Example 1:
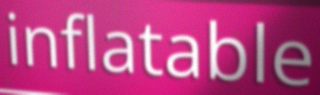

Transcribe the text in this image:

inflatable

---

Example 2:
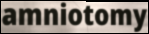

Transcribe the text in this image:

amniotomy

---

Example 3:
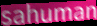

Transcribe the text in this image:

sahuman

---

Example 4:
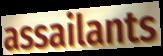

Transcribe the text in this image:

assailants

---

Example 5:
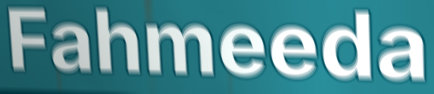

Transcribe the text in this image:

Fahmeeda